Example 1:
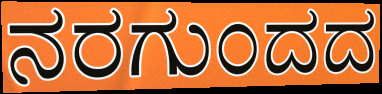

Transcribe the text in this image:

ನರಗುಂದದ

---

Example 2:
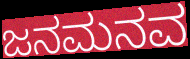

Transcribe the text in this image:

ಜನಮನವ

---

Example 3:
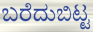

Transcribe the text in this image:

ಬರೆದುಬಿಟ್ಟ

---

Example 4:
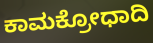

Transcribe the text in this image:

ಕಾಮಕ್ರೋಧಾದಿ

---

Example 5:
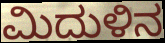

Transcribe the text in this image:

ಮಿದುಳಿನ